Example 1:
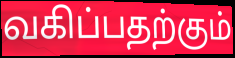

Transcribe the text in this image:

வகிப்பதற்கும்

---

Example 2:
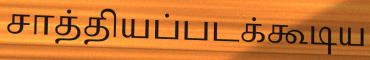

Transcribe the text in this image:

சாத்தியப்படக்கூடிய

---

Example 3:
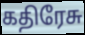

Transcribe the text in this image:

கதிரேசு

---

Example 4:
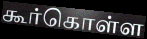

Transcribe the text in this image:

கூர்கொள்ள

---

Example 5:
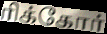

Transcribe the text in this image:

ரிக்கோர்